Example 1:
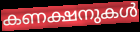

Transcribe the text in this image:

കണക്ഷനുകൾ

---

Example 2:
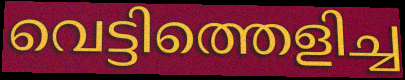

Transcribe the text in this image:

വെട്ടിത്തെളിച്ച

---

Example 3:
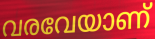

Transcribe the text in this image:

വരവേയാണ്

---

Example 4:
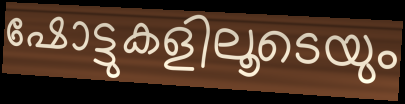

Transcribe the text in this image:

ഷോട്ടുകളിലൂടെയും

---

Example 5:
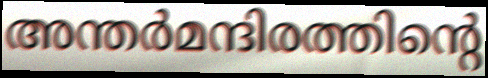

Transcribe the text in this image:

അന്തർമന്ദിരത്തിന്റെ